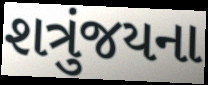
શત્રુંજયના